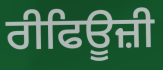
ਰੀਫਿਊਜ਼ੀ